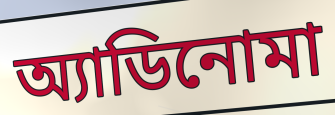
অ্যাডিনোমা